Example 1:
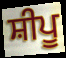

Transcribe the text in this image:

ਸ਼ੀਪੂ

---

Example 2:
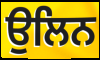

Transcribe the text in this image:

ਉਲਿਨ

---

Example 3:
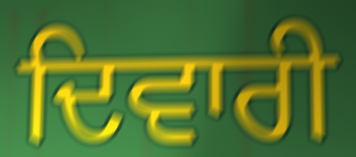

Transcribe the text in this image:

ਦਿਵਾਰੀ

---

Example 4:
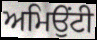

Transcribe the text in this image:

ਅਮਿਉਂਟੀ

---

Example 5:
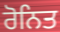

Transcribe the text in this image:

ਰੋਨਿਤ